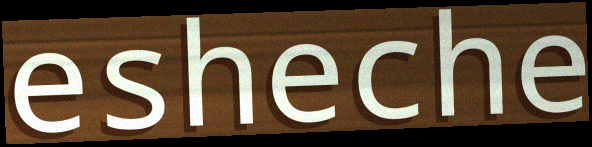
esheche